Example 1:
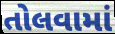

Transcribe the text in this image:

તોલવામાં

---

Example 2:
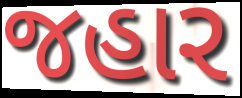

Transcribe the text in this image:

જહાર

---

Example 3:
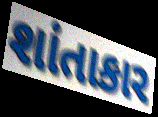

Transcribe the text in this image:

શાંતાકાર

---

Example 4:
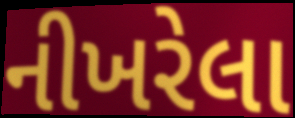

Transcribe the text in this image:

નીખરેલા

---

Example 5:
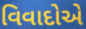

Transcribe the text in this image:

વિવાદોએ